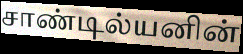
சாண்டில்யனின்